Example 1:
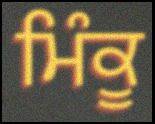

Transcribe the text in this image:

ਮਿੰਕੂ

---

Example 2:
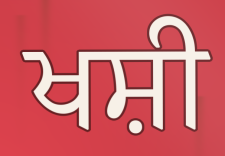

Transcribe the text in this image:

ਖਸ਼ੀ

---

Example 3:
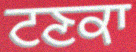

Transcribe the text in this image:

ਟਣਕਾ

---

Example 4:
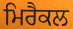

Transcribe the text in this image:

ਮਿਰੈਕਲ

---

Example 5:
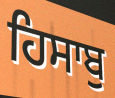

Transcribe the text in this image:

ਹਿਸਾਬੁ